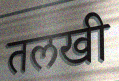
तलखी